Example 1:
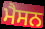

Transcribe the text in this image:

ਮੈਸਨ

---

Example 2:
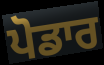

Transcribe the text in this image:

ਪੋਡਾਰ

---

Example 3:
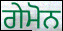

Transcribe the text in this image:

ਗੇਮੋਨ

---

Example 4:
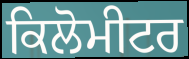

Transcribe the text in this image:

ਕਿਲੋਮੀਟਰ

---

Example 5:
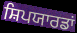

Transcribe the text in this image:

ਸ਼ਿਪਯਾਰਡਾਂ